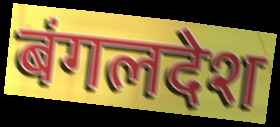
बंगलदेश